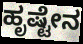
ಹೃಷ್ಟೇನ